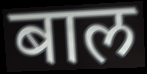
बाल